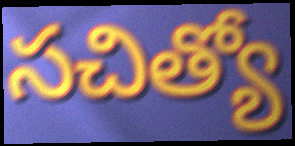
సచిత్యో